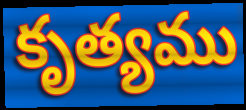
కృత్యము